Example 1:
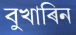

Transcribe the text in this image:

বুখাৰিন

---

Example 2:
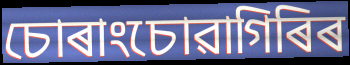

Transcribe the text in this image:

চোৰাংচোৱাগিৰিৰ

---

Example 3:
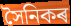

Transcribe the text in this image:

সৈনিকৰ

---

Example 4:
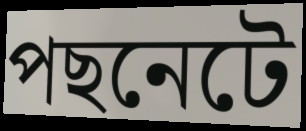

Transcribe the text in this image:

পছনেটে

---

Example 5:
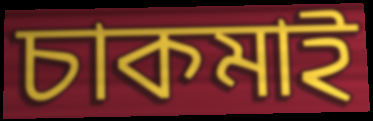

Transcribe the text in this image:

চাকমাই